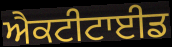
ਐਕਟੀਟਾਈਡ